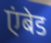
एंबेड